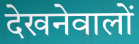
देखनेवालों